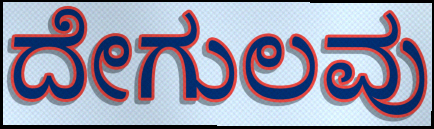
ದೇಗುಲವು